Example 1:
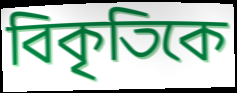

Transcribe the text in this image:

বিকৃতিকে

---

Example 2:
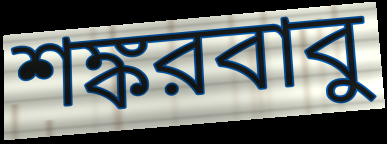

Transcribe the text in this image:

শঙ্করবাবু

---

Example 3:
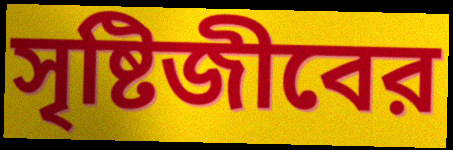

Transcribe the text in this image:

সৃষ্টিজীবের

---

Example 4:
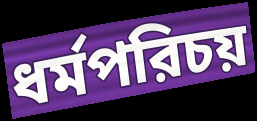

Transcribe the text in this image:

ধর্মপরিচয়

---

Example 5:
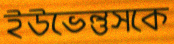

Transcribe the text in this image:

ইউভেন্তুসকে